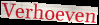
Verhoeven